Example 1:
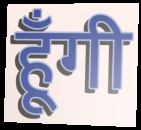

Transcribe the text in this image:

हूँगी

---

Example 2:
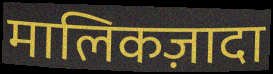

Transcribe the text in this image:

मालिकज़ादा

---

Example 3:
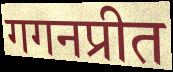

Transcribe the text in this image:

गगनप्रीत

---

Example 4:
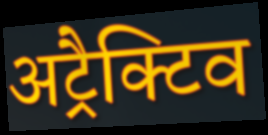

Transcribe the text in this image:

अट्रैक्टिव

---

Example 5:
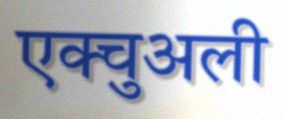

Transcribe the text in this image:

एक्चुअली